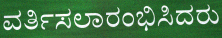
ವರ್ತಿಸಲಾರಂಭಿಸಿದರು